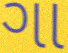
ગા